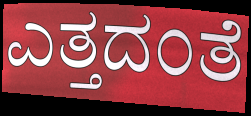
ಎತ್ತದಂತೆ